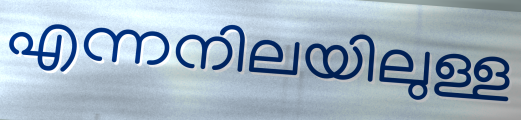
എന്നനിലയിലുള്ള